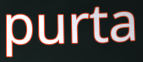
purta